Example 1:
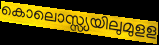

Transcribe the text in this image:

കൊലൊസ്സ്യയിലുമുളള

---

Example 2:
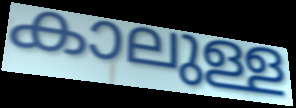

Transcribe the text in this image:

കാലുള്ള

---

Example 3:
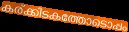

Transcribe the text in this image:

കര്ക്കിടകത്തോടൊപ്പം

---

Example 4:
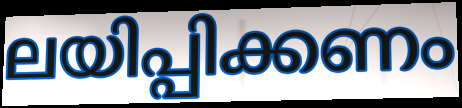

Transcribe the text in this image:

ലയിപ്പിക്കണം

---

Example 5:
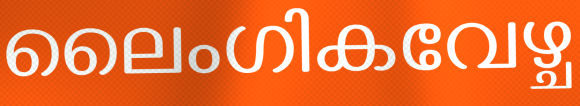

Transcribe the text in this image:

ലൈംഗികവേഴ്ച